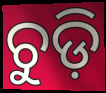
ଚୁଡ଼ି